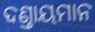
ଦଣ୍ତାୟମାନ